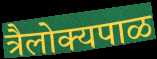
त्रैलोक्यपाळ